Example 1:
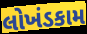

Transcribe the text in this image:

લોખંડકામ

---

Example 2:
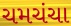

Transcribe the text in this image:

ચમચંચા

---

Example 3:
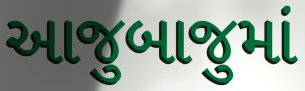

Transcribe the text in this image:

આજુબાજુમાં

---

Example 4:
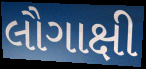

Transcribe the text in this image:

લૌગાક્ષી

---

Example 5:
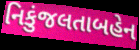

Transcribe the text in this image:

નિકુંજલતાબહેન